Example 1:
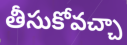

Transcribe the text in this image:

తీసుకోవచ్చా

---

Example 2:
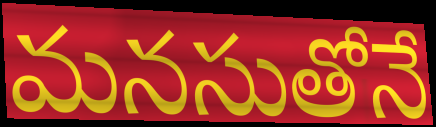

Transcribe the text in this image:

మనసుతోనే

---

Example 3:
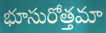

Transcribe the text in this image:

భూసురోత్తమా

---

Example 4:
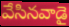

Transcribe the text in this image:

వేసినవాడై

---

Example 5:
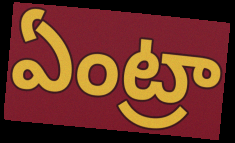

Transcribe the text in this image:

ఏంట్రా